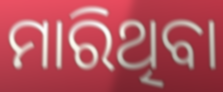
ମାରିଥିବା